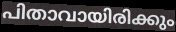
പിതാവായിരിക്കും